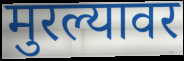
मुरल्यावर